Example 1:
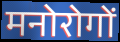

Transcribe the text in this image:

मनोरोगों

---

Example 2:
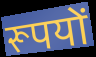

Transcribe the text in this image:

रूपयों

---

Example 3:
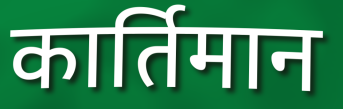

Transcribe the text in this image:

कार्तिमान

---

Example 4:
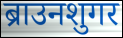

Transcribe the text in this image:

ब्राउनशुगर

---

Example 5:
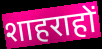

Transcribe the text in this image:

शाहराहों